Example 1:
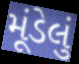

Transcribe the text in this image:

મૂંડેલું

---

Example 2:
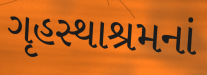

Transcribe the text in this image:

ગૃહસ્થાશ્રમનાં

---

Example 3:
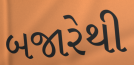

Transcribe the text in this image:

બજારેથી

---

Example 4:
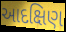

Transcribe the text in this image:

આદક્ષિણ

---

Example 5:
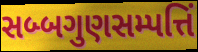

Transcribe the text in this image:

સબ્બગુણસમ્પત્તિં